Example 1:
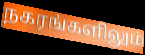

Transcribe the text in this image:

நகரங்களிலும்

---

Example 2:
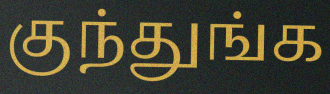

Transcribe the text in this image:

குந்துங்க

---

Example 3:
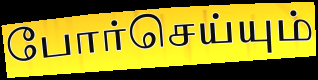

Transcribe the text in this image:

போர்செய்யும்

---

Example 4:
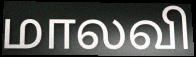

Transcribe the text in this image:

மாலவி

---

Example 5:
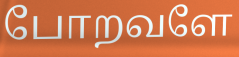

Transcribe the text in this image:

போறவளே